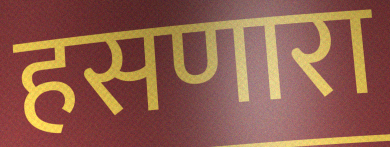
हसणारा